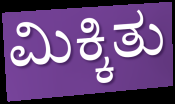
ಮಿಕ್ಕಿತು